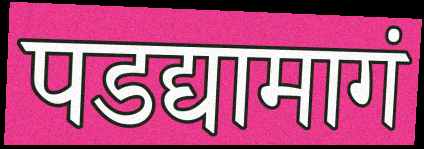
पडद्यामागं